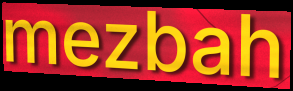
mezbah